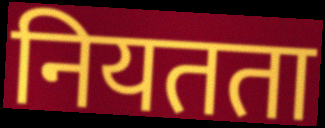
नियतता